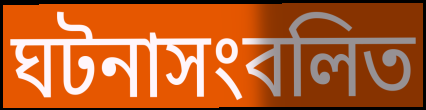
ঘটনাসংবলিত